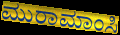
ಮುರಾಮಾಂಸಿ